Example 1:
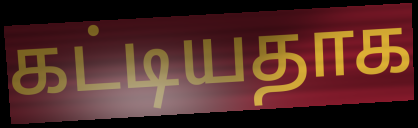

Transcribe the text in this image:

கட்டியதாக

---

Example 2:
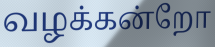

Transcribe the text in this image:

வழக்கன்றோ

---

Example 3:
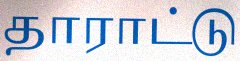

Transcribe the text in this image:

தாராட்டு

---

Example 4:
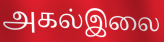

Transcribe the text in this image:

அகல்இலை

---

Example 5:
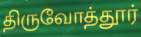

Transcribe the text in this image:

திருவோத்தூர்